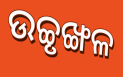
ଉଚ୍ଚୃଙ୍ଖଳ